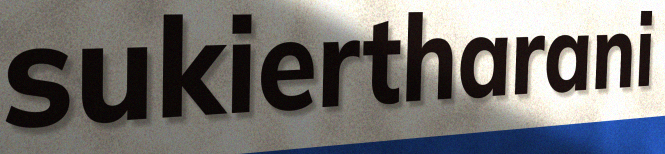
sukiertharani